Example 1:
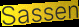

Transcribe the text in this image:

Sassen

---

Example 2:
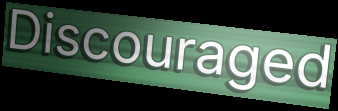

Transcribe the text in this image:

Discouraged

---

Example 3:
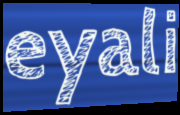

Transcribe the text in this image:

eyali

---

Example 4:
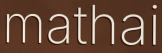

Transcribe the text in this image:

mathai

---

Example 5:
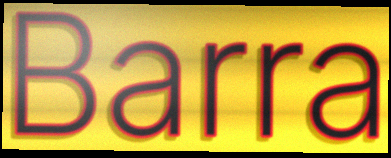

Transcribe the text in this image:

Barra